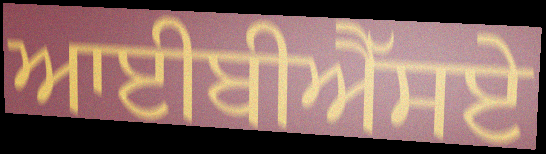
ਆਈਬੀਐੱਸਏ